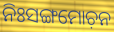
ନିଃସଙ୍ଗମୋଚ଼ନ